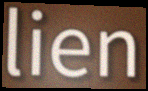
lien